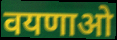
वयणाओ